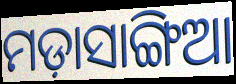
ମଡ଼ାସାଙ୍ଗିଆ